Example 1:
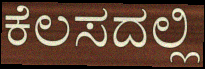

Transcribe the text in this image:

ಕೆಲಸದಲ್ಲಿ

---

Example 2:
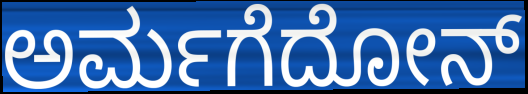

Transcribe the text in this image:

ಅರ್ಮಗೆದೋನ್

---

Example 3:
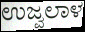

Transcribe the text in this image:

ಉಜ್ವಲಾಳ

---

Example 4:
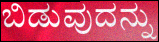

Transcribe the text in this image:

ಬಿಡುವುದನ್ನು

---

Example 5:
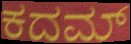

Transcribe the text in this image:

ಕದಮ್